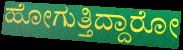
ಹೋಗುತ್ತಿದ್ದಾರೋ